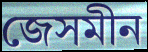
জেসমীন